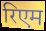
रिएम